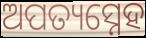
ଅପତ୍ୟସ୍ନେହ